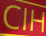
CIH